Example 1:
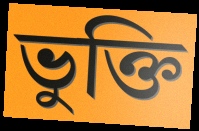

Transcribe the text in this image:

ভুক্তি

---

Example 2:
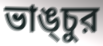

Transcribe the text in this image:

ভাঙ্চুর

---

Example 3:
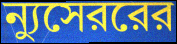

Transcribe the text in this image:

ন্যুসেররের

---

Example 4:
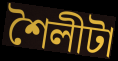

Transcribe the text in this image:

শৈলীটা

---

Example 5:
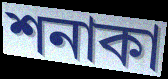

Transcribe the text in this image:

শনাকা